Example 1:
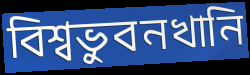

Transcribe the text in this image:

বিশ্বভুবনখানি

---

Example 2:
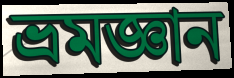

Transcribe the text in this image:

ভ্রমজ্ঞান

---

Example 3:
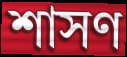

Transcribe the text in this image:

শাসণ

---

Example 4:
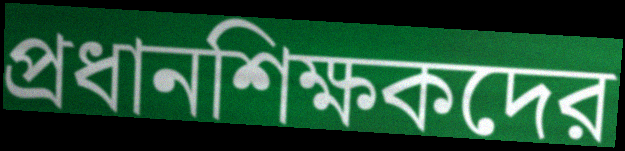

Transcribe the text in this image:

প্রধানশিক্ষকদের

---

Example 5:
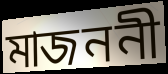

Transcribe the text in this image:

মাজননী